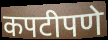
कपटीपणे